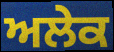
ਅਲੇਕ